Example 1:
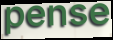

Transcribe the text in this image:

pense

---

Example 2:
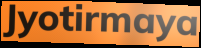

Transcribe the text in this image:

Jyotirmaya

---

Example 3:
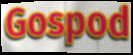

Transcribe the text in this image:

Gospod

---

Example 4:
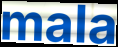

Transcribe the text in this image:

mala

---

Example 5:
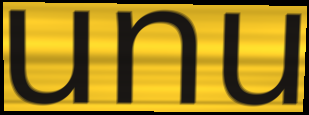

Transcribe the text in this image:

unu